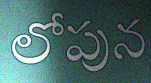
లోపున